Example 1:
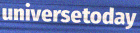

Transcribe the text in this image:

universetoday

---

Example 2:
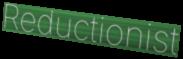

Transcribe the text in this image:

Reductionist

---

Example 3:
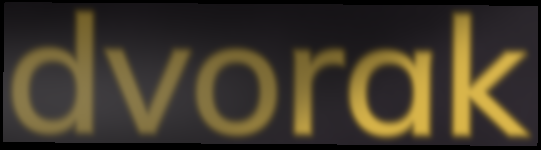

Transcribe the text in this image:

dvorak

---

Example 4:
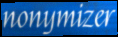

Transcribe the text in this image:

nonymizer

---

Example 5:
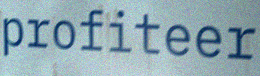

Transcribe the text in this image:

profiteer